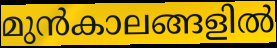
മുൻകാലങ്ങളിൽ